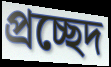
প্রচ্ছেদ